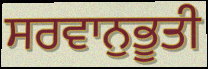
ਸਰਵਾਨੁਭੂਤੀ